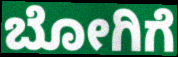
ಬೋಗಿಗೆ